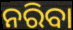
ନରିବା